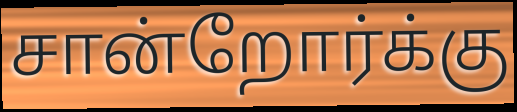
சான்றோர்க்கு